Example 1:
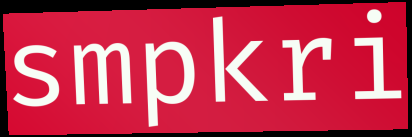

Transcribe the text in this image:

smpkri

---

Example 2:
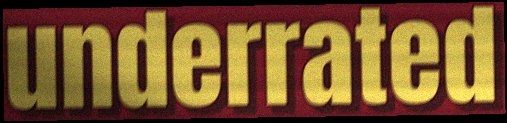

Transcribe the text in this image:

underrated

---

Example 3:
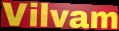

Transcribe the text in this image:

Vilvam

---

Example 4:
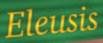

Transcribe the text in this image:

Eleusis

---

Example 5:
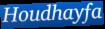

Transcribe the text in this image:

Houdhayfa